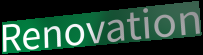
Renovation